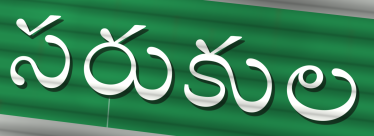
సరుకుల